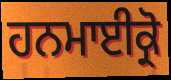
ਹਨਮਾਈਕ੍ਰੋ